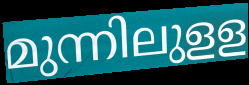
മുന്നിലുളള